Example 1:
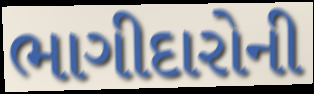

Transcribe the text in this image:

ભાગીદારોની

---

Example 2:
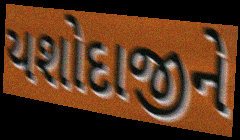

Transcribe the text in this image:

યશોદાજીને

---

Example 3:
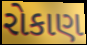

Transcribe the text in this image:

રોકાણ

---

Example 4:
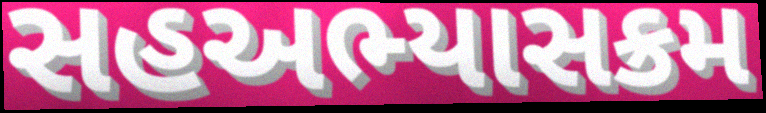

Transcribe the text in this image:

સહઅભ્યાસક્રમ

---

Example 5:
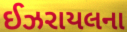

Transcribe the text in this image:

ઈઝરાયલના